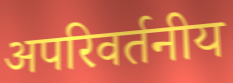
अपरिवर्तनीय